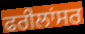
ਫਰੀਲਾਂਸਰ